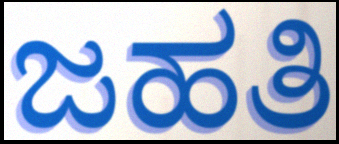
ಜಹತಿ